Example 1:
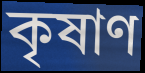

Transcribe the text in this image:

কৃষাণ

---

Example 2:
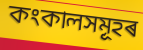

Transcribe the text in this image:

কংকালসমূহৰ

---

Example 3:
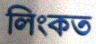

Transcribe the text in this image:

লিংকত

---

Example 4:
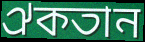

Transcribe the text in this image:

ঐকতান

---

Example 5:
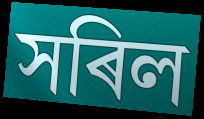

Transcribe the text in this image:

সৰিল